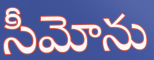
సీమోను